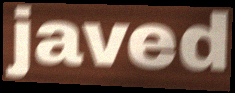
javed